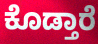
ಕೊಡ್ತಾರೆ